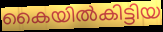
കൈയിൽകിട്ടിയ